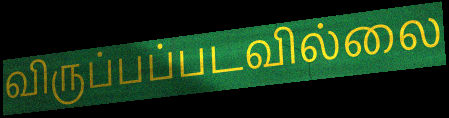
விருப்பப்படவில்லை